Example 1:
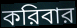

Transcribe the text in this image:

করিবার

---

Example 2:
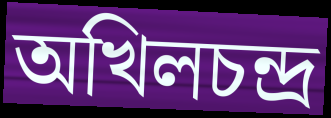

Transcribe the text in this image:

অখিলচন্দ্র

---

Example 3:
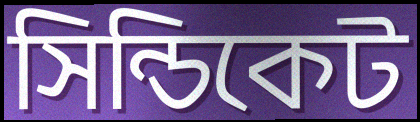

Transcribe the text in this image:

সিন্ডিকেট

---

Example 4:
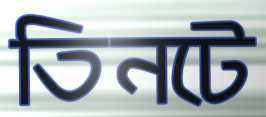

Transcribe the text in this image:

তিনটে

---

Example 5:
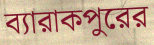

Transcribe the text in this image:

ব্যারাকপুরের